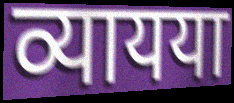
व्यायया